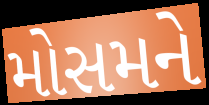
મોસમને